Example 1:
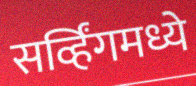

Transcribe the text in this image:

सर्व्हिंगमध्ये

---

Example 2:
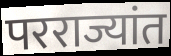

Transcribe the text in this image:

परराज्यांत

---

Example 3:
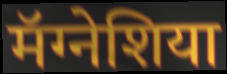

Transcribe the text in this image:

मॅग्‍नेशिया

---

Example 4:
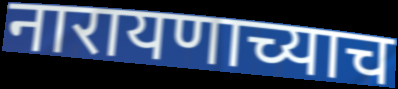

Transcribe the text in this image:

नारायणाच्याच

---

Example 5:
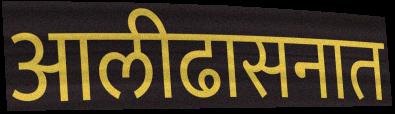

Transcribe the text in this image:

आलीढासनात